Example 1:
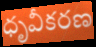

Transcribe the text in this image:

ధృవీకరణ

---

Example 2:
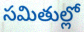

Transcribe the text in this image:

సమితుల్లో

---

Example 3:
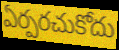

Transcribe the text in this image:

ఏర్పరచుకోదు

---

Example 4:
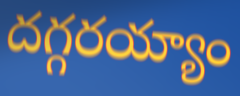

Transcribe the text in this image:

దగ్గరయ్యాం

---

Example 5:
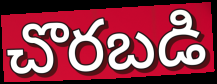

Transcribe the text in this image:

చొరబడి